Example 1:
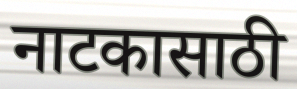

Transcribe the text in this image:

नाटकासाठी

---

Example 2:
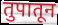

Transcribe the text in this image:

तुपातून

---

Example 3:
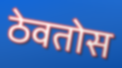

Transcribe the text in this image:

ठेवतोस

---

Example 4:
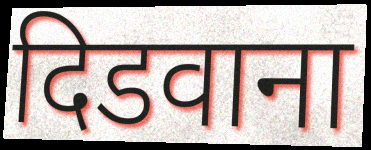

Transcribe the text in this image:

दिडवाना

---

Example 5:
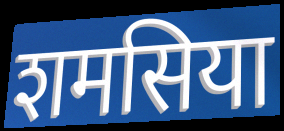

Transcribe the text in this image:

शमसिया